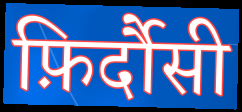
फ़िर्दौसी